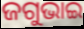
ଜଗୁଭାଇ